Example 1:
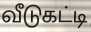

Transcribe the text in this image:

வீடுகட்டி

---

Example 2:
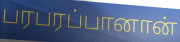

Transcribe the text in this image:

பரபரப்பானான்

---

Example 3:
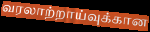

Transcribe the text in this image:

வரலாற்றாய்வுக்கான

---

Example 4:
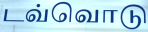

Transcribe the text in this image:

டவ்வொடு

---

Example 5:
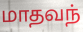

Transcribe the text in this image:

மாதவந்